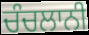
ਚੰਚਲਾਨੀ